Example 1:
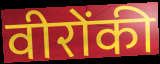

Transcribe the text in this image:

वीरोंकी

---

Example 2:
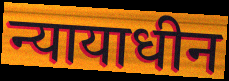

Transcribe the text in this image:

न्यायाधीन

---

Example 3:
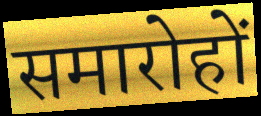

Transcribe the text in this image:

समारोहों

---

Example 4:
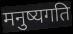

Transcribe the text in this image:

मनुष्यगति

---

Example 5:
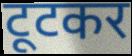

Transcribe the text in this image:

टूटकर